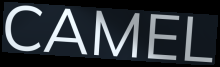
CAMEL